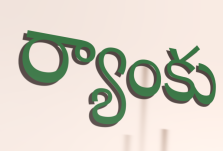
ర్యాంకు